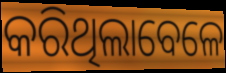
କରିଥିଲାବେଳେ